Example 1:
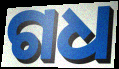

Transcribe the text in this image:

ଗଧ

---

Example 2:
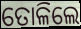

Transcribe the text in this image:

ତୋଳିଲେ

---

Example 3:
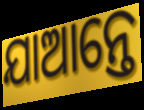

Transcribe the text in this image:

ଯାଆନ୍ତେ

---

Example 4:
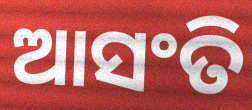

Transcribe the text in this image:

ଆସଂତି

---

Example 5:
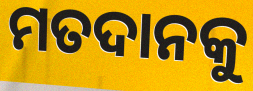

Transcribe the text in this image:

ମତଦାନକୁ